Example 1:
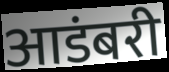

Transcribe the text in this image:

आडंबरी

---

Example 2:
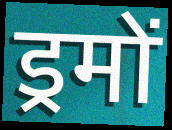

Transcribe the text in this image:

ड्रमों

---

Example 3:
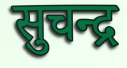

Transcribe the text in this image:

सुचन्द्र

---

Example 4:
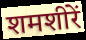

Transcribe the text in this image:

शमशीरें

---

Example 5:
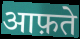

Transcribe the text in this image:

आफ़ते